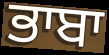
ਭਾਬਾ